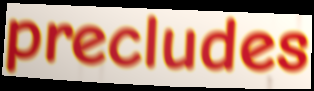
precludes